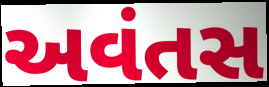
અવંતસ